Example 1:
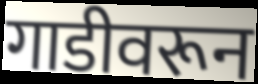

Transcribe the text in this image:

गाडीवरून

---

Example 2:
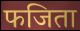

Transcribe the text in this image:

फजिता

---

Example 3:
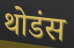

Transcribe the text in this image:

थोडंस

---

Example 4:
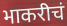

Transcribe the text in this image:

भाकरीचं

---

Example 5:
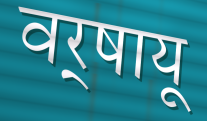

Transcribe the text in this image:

वर्षायू